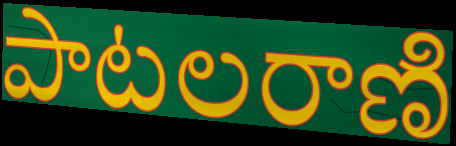
పాటలరాణి